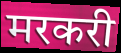
मरकरी